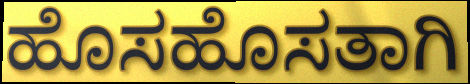
ಹೊಸಹೊಸತಾಗಿ